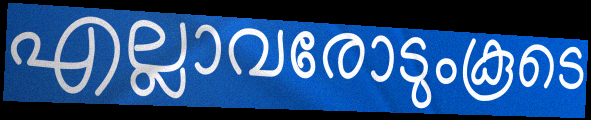
എല്ലാവരോടുംകൂടെ